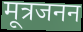
मूत्रजनन